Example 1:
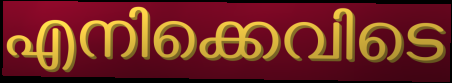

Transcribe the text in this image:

എനിക്കെവിടെ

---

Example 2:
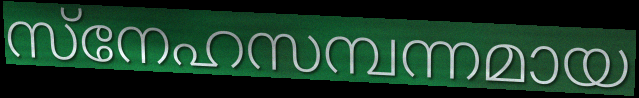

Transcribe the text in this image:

സ്നേഹസമ്പന്നമായ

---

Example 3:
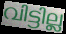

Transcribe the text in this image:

വിട്ടില്ല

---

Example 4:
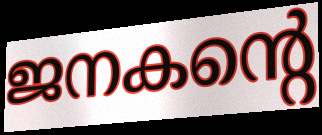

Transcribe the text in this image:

ജനകന്റെ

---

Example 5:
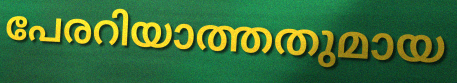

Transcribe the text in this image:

പേരറിയാത്തതുമായ